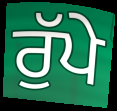
ਰੁੱਪੇ